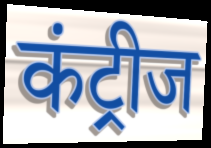
कंट्रीज